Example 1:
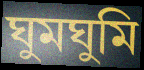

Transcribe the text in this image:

ঘুমঘুমি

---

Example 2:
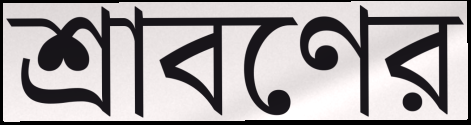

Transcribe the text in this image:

শ্রাবণের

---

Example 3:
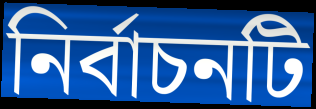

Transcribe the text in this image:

নির্বাচনটি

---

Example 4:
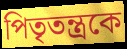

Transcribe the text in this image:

পিতৃতন্ত্রকে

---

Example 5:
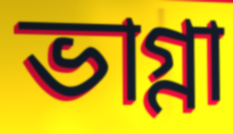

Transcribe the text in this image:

ভাগ্না